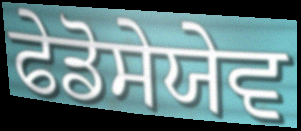
ਫੇਡੋਸੇਯੇਵ